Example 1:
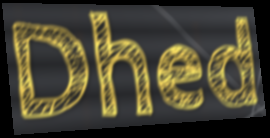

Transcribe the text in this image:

Dhed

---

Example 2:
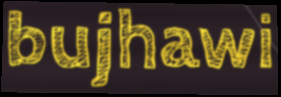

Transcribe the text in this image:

bujhawi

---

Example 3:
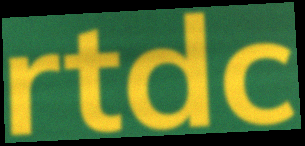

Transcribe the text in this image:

rtdc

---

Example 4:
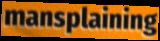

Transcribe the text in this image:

mansplaining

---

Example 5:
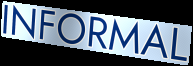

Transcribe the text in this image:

INFORMAL